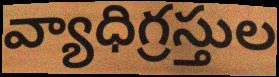
వ్యాధిగ్రస్తుల